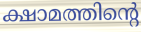
ക്ഷാമത്തിന്റെ